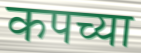
कपच्या